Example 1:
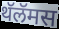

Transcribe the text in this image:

थॅलॅमस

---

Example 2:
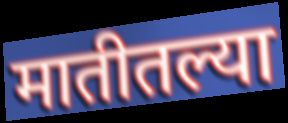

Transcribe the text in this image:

मातीतल्या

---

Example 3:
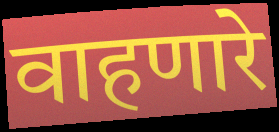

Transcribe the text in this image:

वाहणारे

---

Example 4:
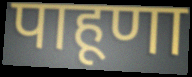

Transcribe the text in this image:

पाहूणा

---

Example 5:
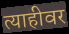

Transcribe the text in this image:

त्याहीवर